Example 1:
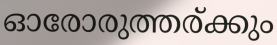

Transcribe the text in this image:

ഓരോരുത്തര്ക്കും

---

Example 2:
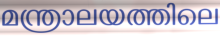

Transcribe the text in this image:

മന്ത്രാലയത്തിലെ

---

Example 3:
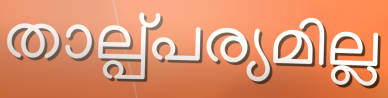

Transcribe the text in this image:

താല്പ്പര്യമില്ല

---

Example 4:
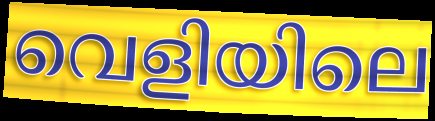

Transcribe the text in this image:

വെളിയിലെ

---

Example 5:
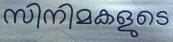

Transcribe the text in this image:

സിനിമകളുടെ